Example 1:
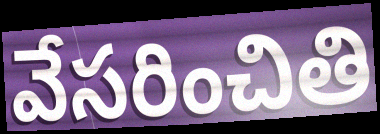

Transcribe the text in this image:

వేసరించితి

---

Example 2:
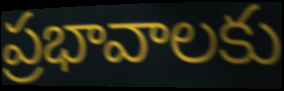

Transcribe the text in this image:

ప్రభావాలకు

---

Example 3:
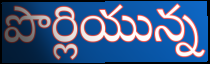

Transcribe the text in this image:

పొర్లియున్న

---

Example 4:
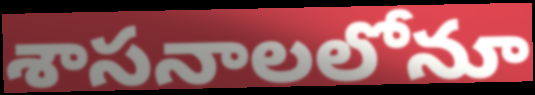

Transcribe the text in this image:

శాసనాలలోనూ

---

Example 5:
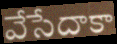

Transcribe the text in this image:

వేసేదాకా